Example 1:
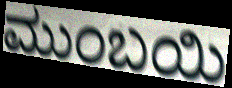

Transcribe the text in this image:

ಮುಂಬಯಿ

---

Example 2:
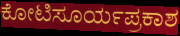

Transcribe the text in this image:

ಕೋಟಿಸೂರ್ಯಪ್ರಕಾಶ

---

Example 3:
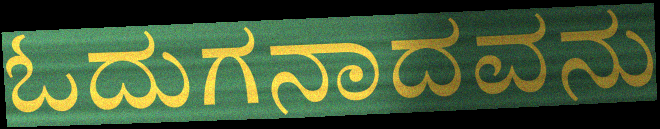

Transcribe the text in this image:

ಓದುಗನಾದವನು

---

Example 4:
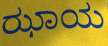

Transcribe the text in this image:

ಝಾಯ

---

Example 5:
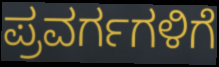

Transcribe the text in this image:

ಪ್ರವರ್ಗಗಳಿಗೆ